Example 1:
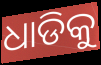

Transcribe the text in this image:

ଧାଡିକୁ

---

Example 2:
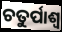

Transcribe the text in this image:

ଚତୁର୍ପାଶ୍ୱ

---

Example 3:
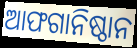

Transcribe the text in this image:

ଆଫଗାନିଷ୍ଠାନ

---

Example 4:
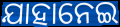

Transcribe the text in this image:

ଯାହାନେଇ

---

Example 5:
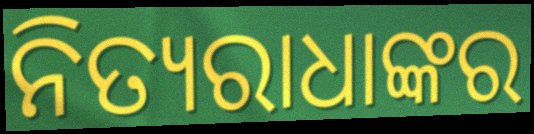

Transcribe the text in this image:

ନିତ୍ୟରାଧାଙ୍କର